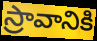
స్రావానికి